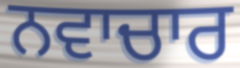
ਨਵਾਚਾਰ